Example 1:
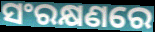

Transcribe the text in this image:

ସଂରକ୍ଷଣରେ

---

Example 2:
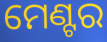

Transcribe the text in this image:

ମେଣ୍ଟର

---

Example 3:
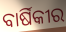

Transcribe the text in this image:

ବାର୍ଷିକୀର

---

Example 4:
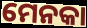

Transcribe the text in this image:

ମେନକା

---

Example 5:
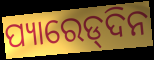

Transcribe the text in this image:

ପ୍ୟାରେଡ୍‌ଦିନ